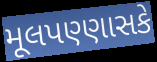
મૂલપણ્ણાસકે